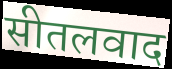
सीतलवाद